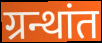
ग्रन्थांत